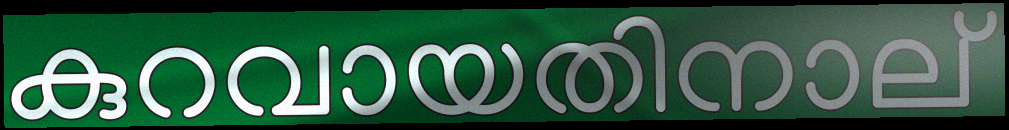
കുറവായതിനാല്